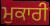
ਮੁਕਾਰੀ